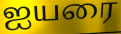
ஐயரை